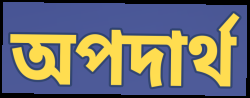
অপদার্থ